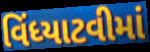
વિંધ્યાટવીમાં